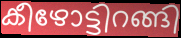
കീഴോട്ടിറങ്ങി